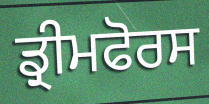
ਡ੍ਰੀਮਫੋਰਸ